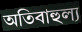
অতিবাহুল্য